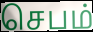
செபம்